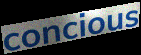
concious